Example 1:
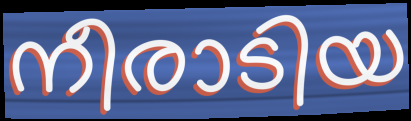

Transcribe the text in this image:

നീരാടിയ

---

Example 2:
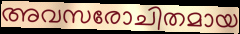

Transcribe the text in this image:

അവസരോചിതമായ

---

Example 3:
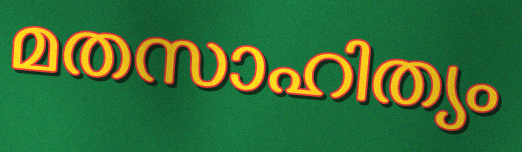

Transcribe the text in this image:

മതസാഹിത്യം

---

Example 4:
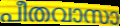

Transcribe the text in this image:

പീതവാസാ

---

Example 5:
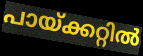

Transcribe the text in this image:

പായ്ക്കറ്റിൽ